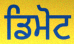
ਡਿਮੋਟ